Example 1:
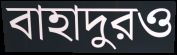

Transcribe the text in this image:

বাহাদুরও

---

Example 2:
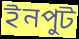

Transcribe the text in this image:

ইনপুট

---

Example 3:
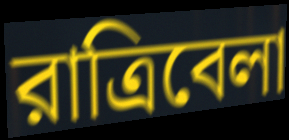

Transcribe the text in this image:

রাত্রিবেলা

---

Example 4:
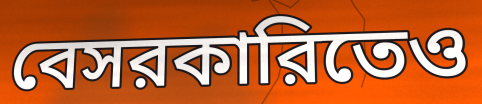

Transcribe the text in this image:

বেসরকারিতেও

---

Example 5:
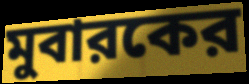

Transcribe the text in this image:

মুবারকের